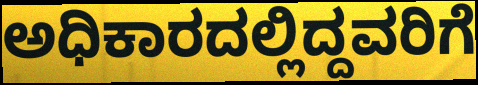
ಅಧಿಕಾರದಲ್ಲಿದ್ದವರಿಗೆ